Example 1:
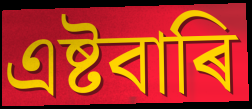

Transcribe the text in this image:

এষ্টবাৰি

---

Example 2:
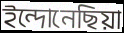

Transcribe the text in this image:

ইন্দোনেছিয়া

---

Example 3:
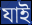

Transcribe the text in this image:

যাই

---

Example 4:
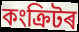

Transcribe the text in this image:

কংক্ৰিটৰ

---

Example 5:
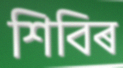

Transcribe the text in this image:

শিবিৰ